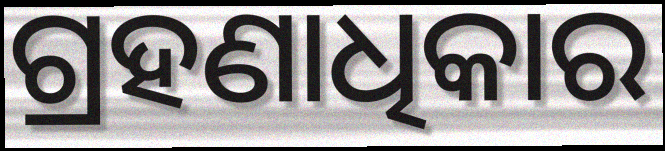
ଗ୍ରହଣାଧିକାର